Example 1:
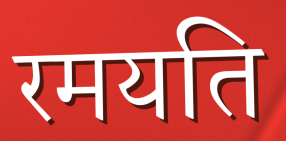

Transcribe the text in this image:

रमयति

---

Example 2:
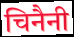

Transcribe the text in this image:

चिनैनी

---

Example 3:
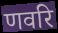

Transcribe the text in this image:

णवरि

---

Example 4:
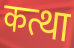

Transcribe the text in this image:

कत्था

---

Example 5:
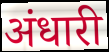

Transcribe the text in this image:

अंधारी